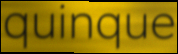
quinque